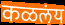
कळलंय